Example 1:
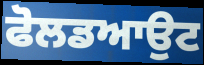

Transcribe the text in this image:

ਫੋਲਡਆਉਟ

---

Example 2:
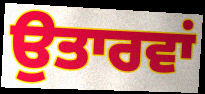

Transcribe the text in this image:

ਉਤਾਰਵਾਂ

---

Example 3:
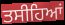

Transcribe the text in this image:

ਤਸੀਹਿਆਂ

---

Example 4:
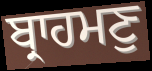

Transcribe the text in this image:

ਬ੍ਰਾਹਮਣੁ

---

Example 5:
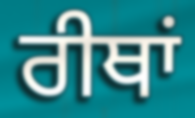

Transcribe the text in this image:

ਰੀਥਾਂ